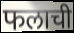
फलाची